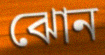
ঝোন